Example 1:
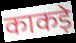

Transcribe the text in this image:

काकड़े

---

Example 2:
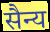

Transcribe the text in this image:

सैन्‍य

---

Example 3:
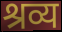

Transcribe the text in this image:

श्रव्य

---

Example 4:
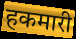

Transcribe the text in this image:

हकमारी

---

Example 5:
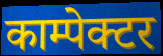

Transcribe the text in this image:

काम्पेक्टर